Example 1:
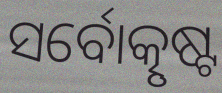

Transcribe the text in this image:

ସର୍ବୋତ୍କୃଷ୍ଟ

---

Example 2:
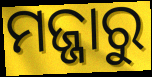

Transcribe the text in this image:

ମଜ୍ଜାରୁ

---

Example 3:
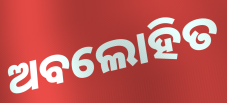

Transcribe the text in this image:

ଅବଲୋହିତ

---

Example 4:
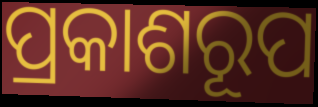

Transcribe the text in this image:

ପ୍ରକାଶରୂପ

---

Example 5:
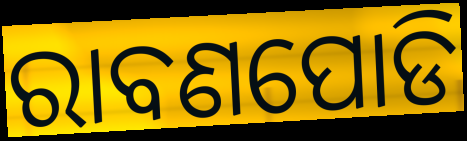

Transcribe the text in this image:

ରାବଣପୋଡି